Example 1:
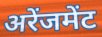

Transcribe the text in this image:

अरेंजमेंट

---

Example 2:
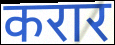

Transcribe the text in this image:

करार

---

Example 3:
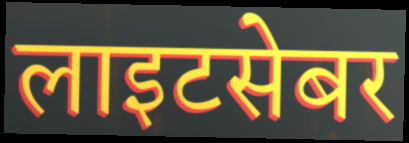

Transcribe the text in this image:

लाइटसेबर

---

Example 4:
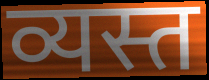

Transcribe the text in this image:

व्यस्त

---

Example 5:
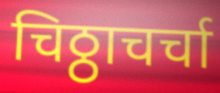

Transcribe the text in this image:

चिठ्ठाचर्चा